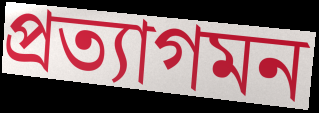
প্রত্যাগমন